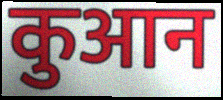
कुआन